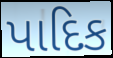
પાદિક